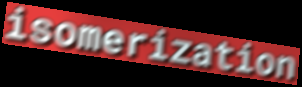
isomerization